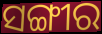
ସଙ୍ଗୀର